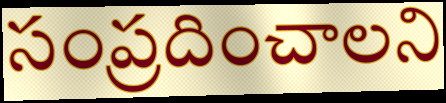
సంప్రదించాలని